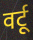
वर्टू